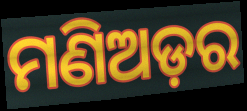
ମଣିଅଡ଼ର